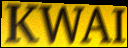
KWAI